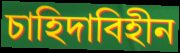
চাহিদাবিহীন